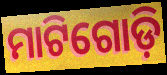
ମାଟିଗୋଡ଼ି